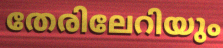
തേരിലേറിയും